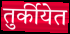
तुर्कीयेत